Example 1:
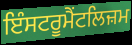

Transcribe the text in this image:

ਇੰਸਟਰੂਮੈਂਟਲਿਜ਼ਮ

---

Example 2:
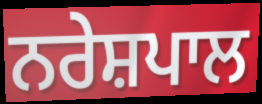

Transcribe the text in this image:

ਨਰੇਸ਼ਪਾਲ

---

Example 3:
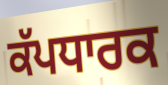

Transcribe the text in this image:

ਕੱਪਧਾਰਕ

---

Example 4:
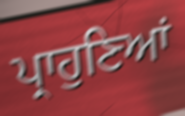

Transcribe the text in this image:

ਪ੍ਰਾਹੁਣਿਆਂ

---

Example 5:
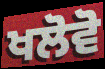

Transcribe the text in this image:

ਖਲੋਵੋ